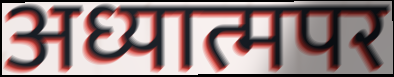
अध्यात्मपर